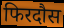
फिरदौस